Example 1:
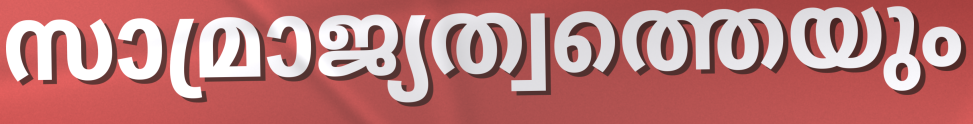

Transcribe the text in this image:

സാമ്രാജ്യത്വത്തെയും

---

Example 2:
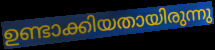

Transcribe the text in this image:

ഉണ്ടാക്കിയതായിരുന്നു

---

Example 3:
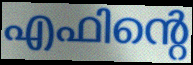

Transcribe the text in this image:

എഫിന്റെ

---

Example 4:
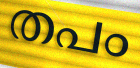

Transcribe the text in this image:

തപം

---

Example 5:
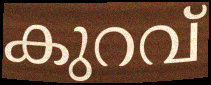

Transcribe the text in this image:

കുറവ്